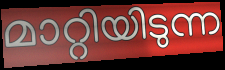
മാറ്റിയിടുന്ന